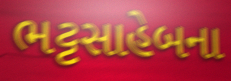
ભટ્ટસાહેબના